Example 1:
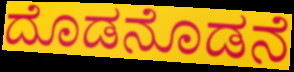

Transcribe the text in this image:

ದೊಡನೊಡನೆ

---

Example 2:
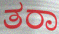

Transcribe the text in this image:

ತರಾ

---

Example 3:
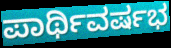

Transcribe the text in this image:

ಪಾರ್ಥಿವರ್ಷಭ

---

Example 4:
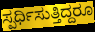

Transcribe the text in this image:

ಸ್ಪರ್ಧಿಸುತ್ತಿದ್ದರೂ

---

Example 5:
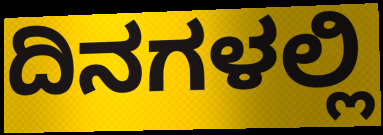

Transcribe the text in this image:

ದಿನಗಳಲ್ಲಿ